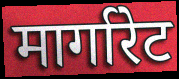
मार्गारेट